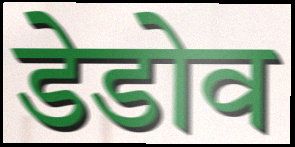
डेडोव